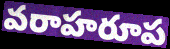
వరాహరూప